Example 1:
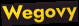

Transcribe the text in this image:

Wegovy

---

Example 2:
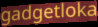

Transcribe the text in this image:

gadgetloka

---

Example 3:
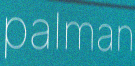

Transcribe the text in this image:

palman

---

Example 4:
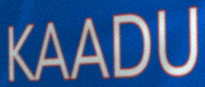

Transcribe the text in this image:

KAADU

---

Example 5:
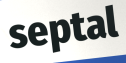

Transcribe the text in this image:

septal